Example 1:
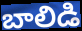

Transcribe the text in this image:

బాలిడి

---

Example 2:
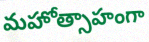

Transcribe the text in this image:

మహోత్సాహంగా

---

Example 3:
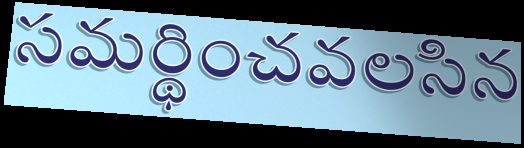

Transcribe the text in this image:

సమర్థించవలసిన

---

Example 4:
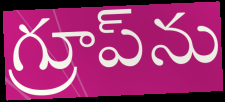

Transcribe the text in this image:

గ్రూప్‌ను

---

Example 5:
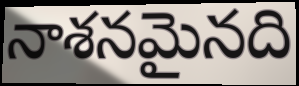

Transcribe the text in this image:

నాశనమైనది